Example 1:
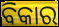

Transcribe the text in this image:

ବିକାର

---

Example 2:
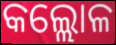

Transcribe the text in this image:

କଲ୍ଲୋଳ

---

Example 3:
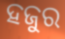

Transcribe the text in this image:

ହଜୁର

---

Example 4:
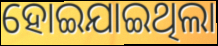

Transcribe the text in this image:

ହୋଇଯାଇଥିଲା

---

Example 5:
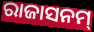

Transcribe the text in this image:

ରାଜାସନମ୍